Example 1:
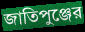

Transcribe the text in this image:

জাতিপুঞ্জের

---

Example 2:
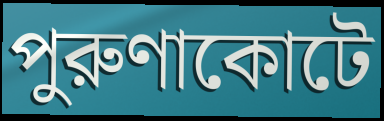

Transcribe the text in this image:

পুরুণাকোটে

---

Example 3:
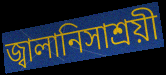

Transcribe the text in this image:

জ্বালানিসাশ্রয়ী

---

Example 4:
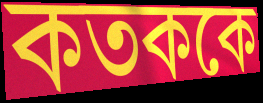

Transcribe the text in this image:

কতককে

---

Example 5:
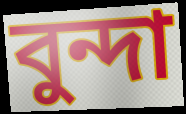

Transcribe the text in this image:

বুন্দা